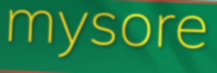
mysore